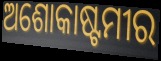
ଅଶୋକାଷ୍ଟମୀର